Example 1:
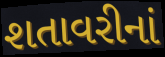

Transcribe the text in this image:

શતાવરીનાં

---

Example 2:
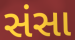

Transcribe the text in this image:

સંસા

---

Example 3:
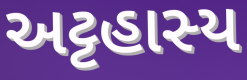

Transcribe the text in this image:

અટ્ટહાસ્ય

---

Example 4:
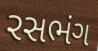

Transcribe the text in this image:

રસભંગ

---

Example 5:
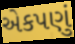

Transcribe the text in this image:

એકપણું